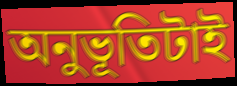
অনুভূতিটাই